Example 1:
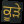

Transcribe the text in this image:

ਕੂੜੇ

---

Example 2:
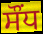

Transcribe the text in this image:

ਸੌਂਧ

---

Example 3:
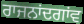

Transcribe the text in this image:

ਰਾਜਨਾਂਦਗਾਂਵ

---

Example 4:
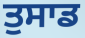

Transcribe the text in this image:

ਤੁਸਾਡ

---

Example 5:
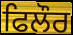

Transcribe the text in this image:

ਫਿਲੌਰ